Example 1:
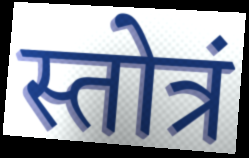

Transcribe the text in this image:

स्तोत्रं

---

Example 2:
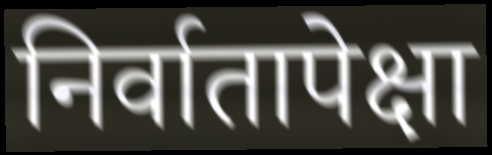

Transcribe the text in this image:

निर्वातापेक्षा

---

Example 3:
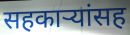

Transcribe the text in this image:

सहकाऱ्यांसह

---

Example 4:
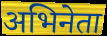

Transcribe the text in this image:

अभिनेता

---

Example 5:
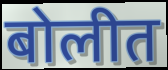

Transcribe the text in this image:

बोलीत